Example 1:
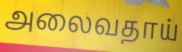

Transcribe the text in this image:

அலைவதாய்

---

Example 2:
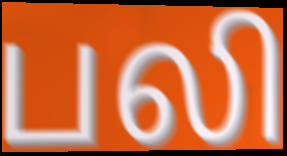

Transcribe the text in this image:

பலி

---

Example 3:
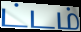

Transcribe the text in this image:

ட்டம்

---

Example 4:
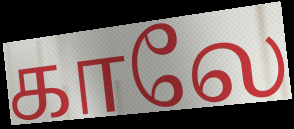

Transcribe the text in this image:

காலே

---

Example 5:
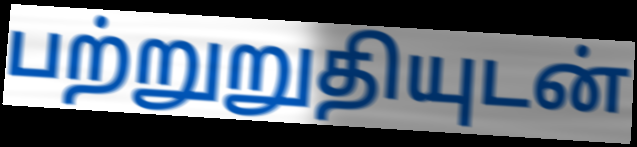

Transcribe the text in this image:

பற்றுறுதியுடன்